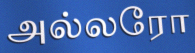
அல்லரோ